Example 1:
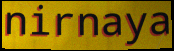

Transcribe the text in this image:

nirnaya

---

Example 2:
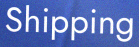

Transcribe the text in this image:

Shipping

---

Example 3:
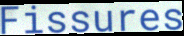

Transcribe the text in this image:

Fissures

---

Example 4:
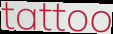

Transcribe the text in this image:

tattoo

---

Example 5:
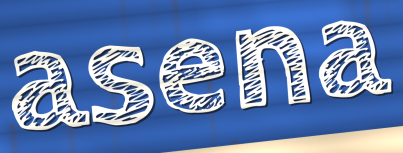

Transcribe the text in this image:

asena